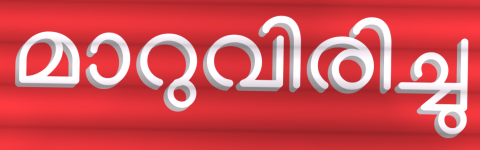
മാറുവിരിച്ചു